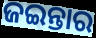
ଜଇନ୍ତାର